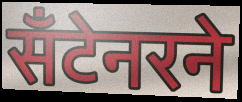
सँटेनरने